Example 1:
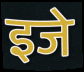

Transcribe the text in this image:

इजे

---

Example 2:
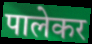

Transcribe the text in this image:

पालेकर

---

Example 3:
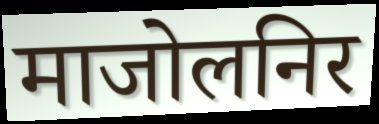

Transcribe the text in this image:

माजोलनिर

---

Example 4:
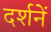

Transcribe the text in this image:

दर्शनें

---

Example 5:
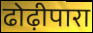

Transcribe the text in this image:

ढोढ़ीपारा